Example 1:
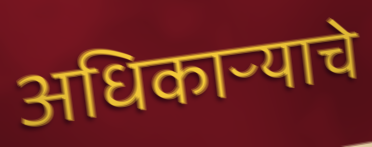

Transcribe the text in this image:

अधिकाऱ्याचे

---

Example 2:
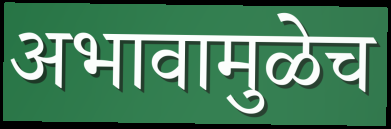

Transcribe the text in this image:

अभावामुळेच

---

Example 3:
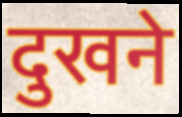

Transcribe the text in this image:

दुखने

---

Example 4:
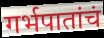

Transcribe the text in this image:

गर्भपातांचं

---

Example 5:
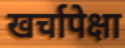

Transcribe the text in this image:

खर्चापेक्षा